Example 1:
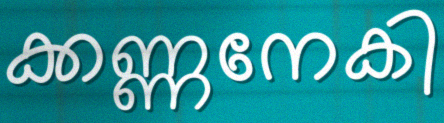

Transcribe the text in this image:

ക്കണ്ണനേകി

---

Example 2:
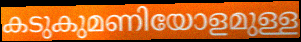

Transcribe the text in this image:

കടുകുമണിയോളമുള്ള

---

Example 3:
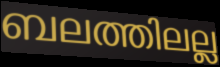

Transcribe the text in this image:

ബലത്തിലല്ല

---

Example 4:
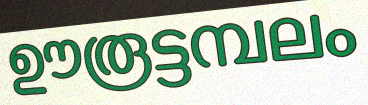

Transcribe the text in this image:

ഊരൂട്ടമ്പലം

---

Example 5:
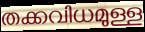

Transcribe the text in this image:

തക്കവിധമുള്ള